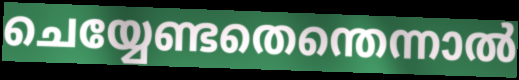
ചെയ്യേണ്ടതെന്തെന്നാൽ